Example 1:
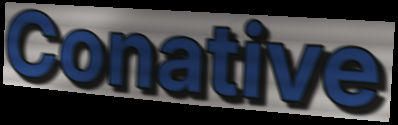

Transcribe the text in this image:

Conative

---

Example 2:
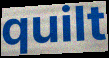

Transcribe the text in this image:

quilt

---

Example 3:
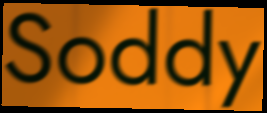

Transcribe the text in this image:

Soddy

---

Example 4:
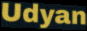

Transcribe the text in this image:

Udyan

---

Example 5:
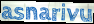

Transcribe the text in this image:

asnarivu